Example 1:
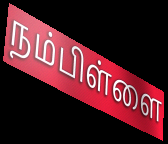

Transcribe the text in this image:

நம்பிள்ளை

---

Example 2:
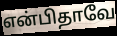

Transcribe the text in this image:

என்பிதாவே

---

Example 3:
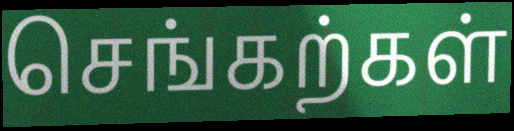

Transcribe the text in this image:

செங்கற்கள்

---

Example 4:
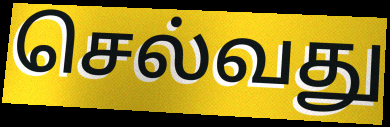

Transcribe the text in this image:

செல்வது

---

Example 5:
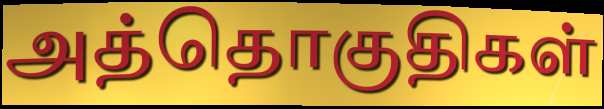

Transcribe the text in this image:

அத்தொகுதிகள்